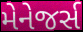
મેનેજર્સ